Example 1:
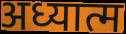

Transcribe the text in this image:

अध्यात्म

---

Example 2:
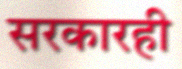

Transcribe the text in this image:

सरकारही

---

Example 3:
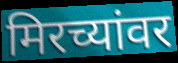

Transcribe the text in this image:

मिरच्यांवर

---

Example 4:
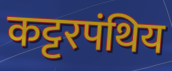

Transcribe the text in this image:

कट्टरपंथिय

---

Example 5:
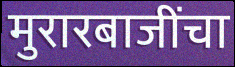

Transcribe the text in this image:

मुरारबाजींचा